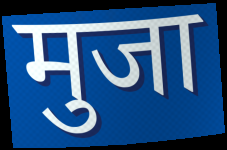
मुजा